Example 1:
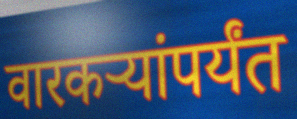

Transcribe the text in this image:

वारकऱ्यांपर्यंत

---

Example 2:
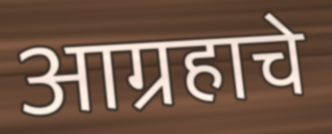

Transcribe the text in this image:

आग्रहाचे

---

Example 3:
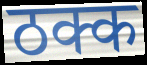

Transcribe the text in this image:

ठक्क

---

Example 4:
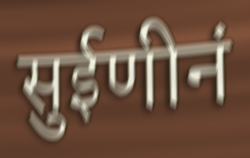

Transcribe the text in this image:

सुईणीनं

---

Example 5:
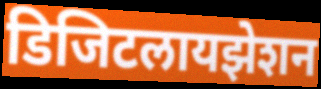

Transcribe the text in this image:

डिजिटलायझेशन